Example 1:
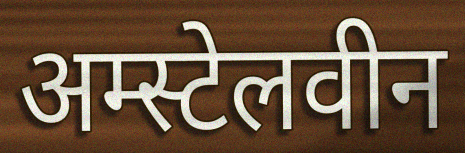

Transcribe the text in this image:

अम्स्टेलवीन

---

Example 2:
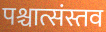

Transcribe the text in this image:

पश्चात्संस्तव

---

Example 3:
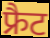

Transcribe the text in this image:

फ्रैट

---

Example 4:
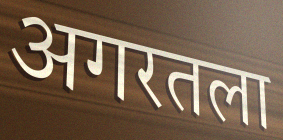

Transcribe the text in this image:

अगरतला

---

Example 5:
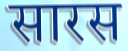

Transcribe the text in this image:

सारस